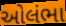
ઓલંભા